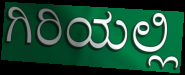
ಗಿರಿಯಲ್ಲಿ